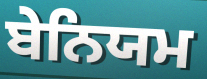
ਬੇਨਿਯਮ